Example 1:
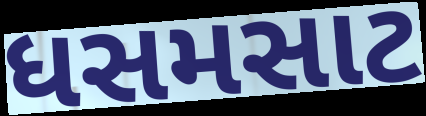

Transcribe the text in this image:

ધસમસાટ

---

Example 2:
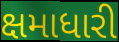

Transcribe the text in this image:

ક્ષમાધારી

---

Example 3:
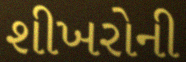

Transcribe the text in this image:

શીખરોની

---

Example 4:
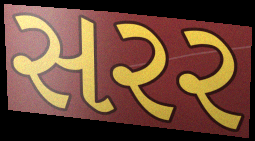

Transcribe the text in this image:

સરર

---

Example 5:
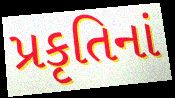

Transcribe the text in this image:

પ્રકૃતિનાં